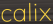
calix